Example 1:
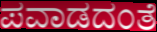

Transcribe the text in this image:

ಪವಾಡದಂತೆ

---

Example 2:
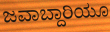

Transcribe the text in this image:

ಜವಾಬ್ದಾರಿಯೂ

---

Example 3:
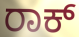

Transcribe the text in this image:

ರಾಕ್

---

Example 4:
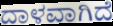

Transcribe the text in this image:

ದಾಳವಾಗಿದೆ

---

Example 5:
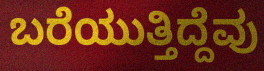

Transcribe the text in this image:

ಬರೆಯುತ್ತಿದ್ದೆವು